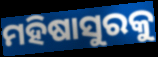
ମହିଷାସୁରକୁ